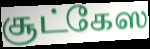
சூட்கேஸ